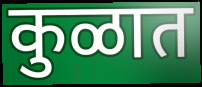
कुळात